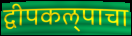
द्वीपकल्पाचा